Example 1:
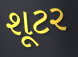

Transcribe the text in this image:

શૂટર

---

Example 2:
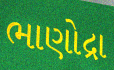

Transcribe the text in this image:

ભાણોદ્રા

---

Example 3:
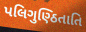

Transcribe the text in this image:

પલિગુણ્ઠિતાતિ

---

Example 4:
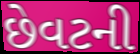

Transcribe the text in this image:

છેવટની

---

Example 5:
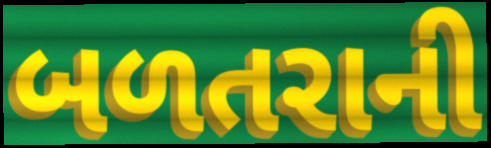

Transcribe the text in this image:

બળતરાની